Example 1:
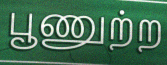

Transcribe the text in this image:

பூணுற்ற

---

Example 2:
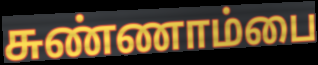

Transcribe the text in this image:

சுண்ணாம்பை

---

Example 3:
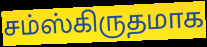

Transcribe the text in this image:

சம்ஸ்கிருதமாக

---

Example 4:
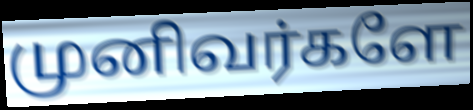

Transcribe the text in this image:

முனிவர்களே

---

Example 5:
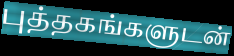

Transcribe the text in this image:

புத்தகங்களுடன்